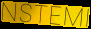
NSTEMI